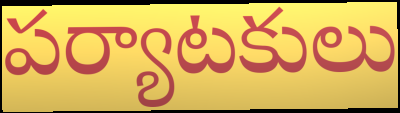
పర్యాటకులు